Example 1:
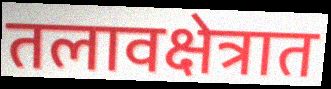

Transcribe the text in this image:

तलावक्षेत्रात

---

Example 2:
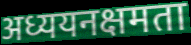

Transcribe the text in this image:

अध्ययनक्षमता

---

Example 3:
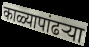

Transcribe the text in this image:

काळ्यापांढर्‍या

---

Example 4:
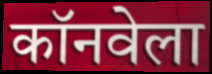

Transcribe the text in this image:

कॉनवेला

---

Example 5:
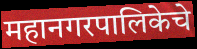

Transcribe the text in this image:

महानगरपालिकेचे